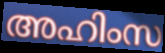
അഹിംസ